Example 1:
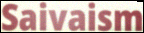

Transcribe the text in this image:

Saivaism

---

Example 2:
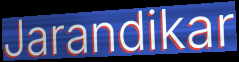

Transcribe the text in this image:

Jarandikar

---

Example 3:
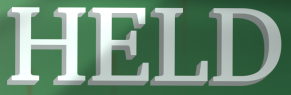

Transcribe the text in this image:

HELD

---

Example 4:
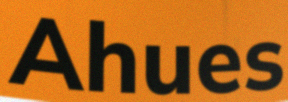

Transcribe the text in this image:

Ahues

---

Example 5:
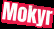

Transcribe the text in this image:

Mokyr